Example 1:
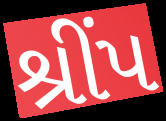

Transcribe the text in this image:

શ્રીંપ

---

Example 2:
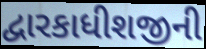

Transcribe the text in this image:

દ્વારકાધીશજીની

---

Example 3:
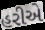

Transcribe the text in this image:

હરીએ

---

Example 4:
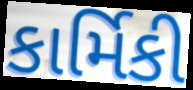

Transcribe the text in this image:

કાર્મિકી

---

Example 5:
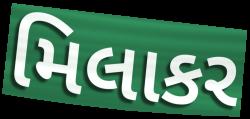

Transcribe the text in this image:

મિલાકર